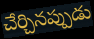
చేర్చినప్పుడు